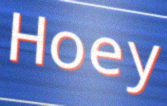
Hoey